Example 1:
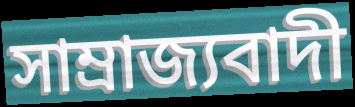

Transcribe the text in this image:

সাম্রাজ্যবাদী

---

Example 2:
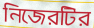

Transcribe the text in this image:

নিজেরটির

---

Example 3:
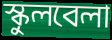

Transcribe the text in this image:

স্কুলবেলা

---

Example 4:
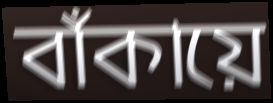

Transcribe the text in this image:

বাঁকায়ে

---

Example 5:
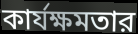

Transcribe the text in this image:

কার্যক্ষমতার